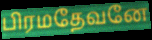
பிரமதேவனே